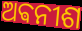
ଅଵନୀଶ